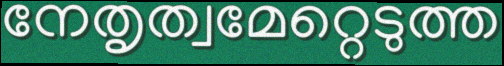
നേതൃത്വമേറ്റെടുത്ത